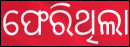
ଫେରିଥିଲା